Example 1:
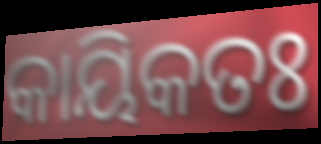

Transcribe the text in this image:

କାୟିକତଃ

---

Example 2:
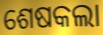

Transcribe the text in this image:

ଶେଷକଲା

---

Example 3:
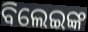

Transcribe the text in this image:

ବିଲେଇଙ୍କ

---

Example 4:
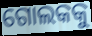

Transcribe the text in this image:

ଗୋଲକକୁ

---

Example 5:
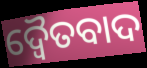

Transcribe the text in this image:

ଦ୍ୱୈତବାଦ